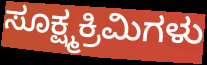
ಸೂಕ್ಷ್ಮಕ್ರಿಮಿಗಳು